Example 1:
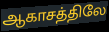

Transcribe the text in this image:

ஆகாசத்திலே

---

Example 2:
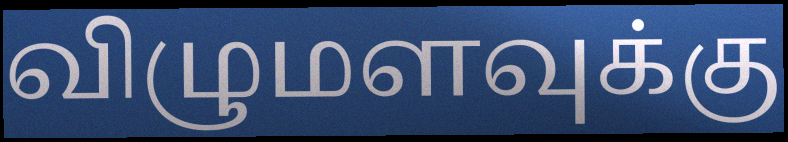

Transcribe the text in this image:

விழுமளவுக்கு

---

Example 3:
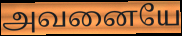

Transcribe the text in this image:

அவனையே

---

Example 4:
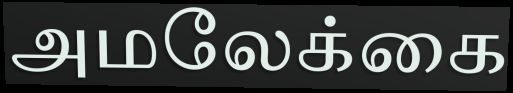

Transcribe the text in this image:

அமலேக்கை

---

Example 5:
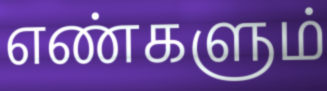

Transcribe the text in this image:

எண்களும்